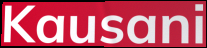
Kausani